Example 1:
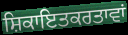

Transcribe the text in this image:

ਸ਼ਿਕਾਇਤਕਰਤਾਵਾਂ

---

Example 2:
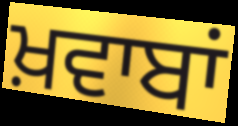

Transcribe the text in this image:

ਖ਼ਵਾਬਾਂ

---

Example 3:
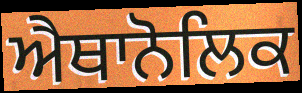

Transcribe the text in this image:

ਐਥਾਨੋਲਿਕ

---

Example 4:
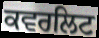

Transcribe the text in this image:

ਕਵਰਲਿਟ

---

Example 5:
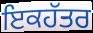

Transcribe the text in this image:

ਇਕਹੱਤਰ